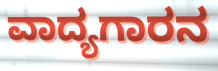
ವಾದ್ಯಗಾರನ